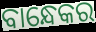
ବାନ୍ଧେକର